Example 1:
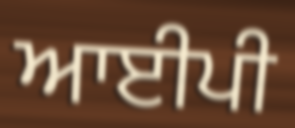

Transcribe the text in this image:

ਆਈਪੀ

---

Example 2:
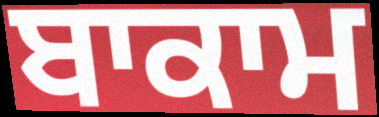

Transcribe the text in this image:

ਬਾਕਾਮ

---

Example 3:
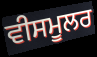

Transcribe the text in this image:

ਵੀਸਮੂਲਰ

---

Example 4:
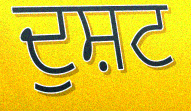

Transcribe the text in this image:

ਦੁਸ਼ਟ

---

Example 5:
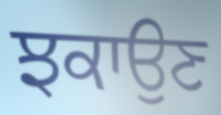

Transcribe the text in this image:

ਝਕਾਉਣ